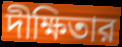
দীক্ষিতার